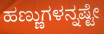
ಹಣ್ಣುಗಳನ್ನಷ್ಟೇ